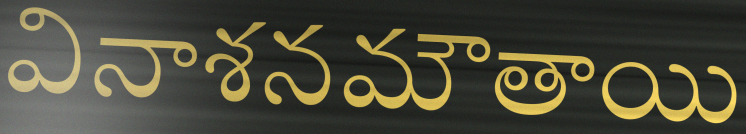
వినాశనమౌతాయి